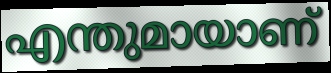
എന്തുമായാണ്